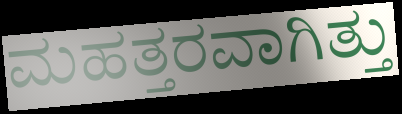
ಮಹತ್ತರವಾಗಿತ್ತು